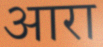
आरा